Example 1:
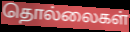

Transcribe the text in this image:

தொல்லைகள்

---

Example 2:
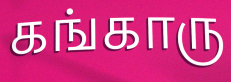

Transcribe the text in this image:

கங்காரு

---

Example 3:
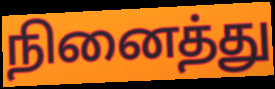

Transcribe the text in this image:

நினைத்து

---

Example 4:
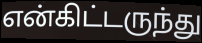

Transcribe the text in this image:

என்கிட்டருந்து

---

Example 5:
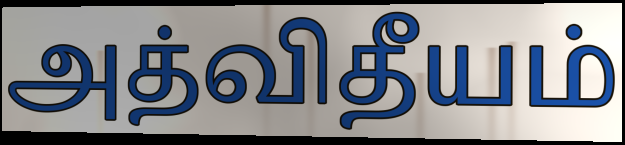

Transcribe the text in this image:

அத்விதீயம்